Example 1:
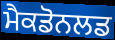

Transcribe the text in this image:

ਮੈਕਡੋਨਲਡ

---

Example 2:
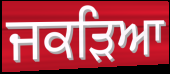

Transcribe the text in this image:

ਜਕੜਿਆ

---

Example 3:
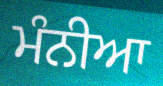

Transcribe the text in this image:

ਮੰਨੀਆ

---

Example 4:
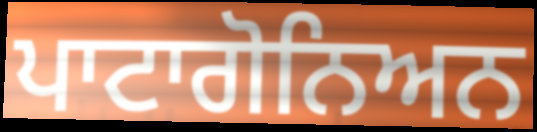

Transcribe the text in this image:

ਪਾਟਾਗੋਨਿਅਨ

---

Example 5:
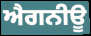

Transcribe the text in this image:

ਐਗਨੀਊ